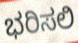
ಭರಿಸಲಿ